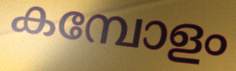
കമ്പോളം